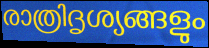
രാത്രിദൃശ്യങ്ങളും